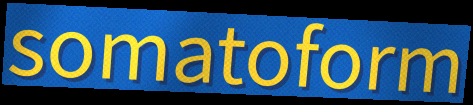
somatoform